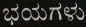
ಭಯಗಳು